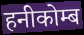
हनीकोम्ब